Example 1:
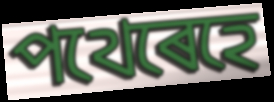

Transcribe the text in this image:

পথেৰেহে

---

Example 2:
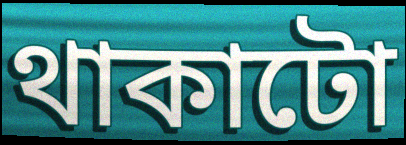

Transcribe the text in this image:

থাকাটো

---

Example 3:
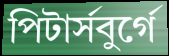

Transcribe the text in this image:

পিটাৰ্সবুৰ্গে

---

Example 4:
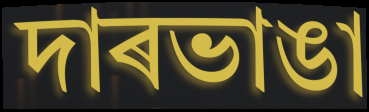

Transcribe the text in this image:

দাৰভাঙা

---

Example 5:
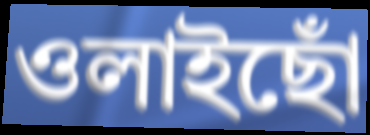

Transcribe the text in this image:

ওলাইছোঁ